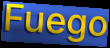
Fuego